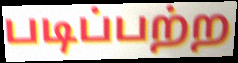
படிப்பற்ற